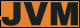
JVM